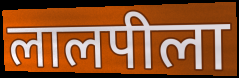
लालपीला